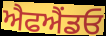
ਐਫਐਂਡਓ